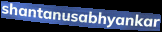
shantanusabhyankar